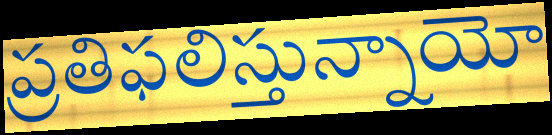
ప్రతిఫలిస్తున్నాయో